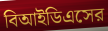
বিআইডিএসের